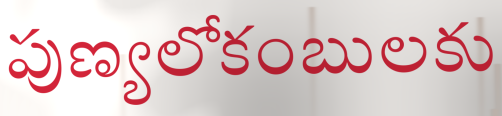
పుణ్యలోకంబులకు